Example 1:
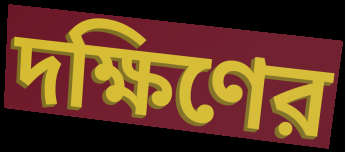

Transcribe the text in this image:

দক্ষিণের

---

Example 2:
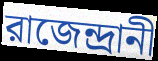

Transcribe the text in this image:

রাজেন্দ্রানী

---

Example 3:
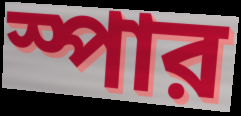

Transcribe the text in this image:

স্পার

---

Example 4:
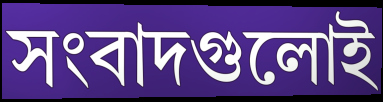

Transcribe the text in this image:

সংবাদগুলোই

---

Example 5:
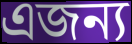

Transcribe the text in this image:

এজন্য